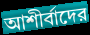
আশীর্বাদের